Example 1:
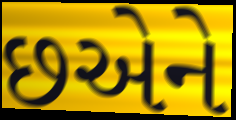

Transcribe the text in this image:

છએને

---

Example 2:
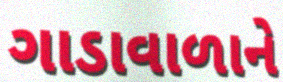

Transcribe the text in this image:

ગાડાવાળાને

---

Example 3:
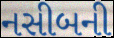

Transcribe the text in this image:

નસીબની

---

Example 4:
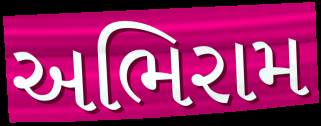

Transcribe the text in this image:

અભિરામ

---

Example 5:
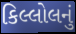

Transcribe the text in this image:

કિલ્લોલનું